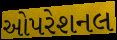
ઓપરેશનલ